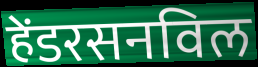
हेंडरसनविल